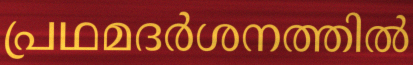
പ്രഥമദർശനത്തിൽ